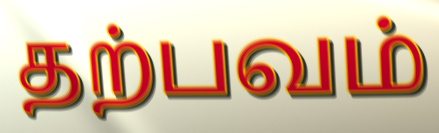
தற்பவம்